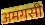
अमगसी